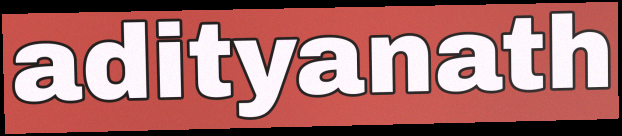
adityanath